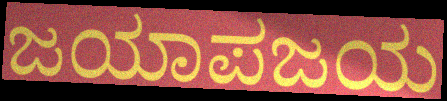
ಜಯಾಪಜಯ